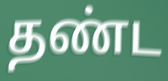
தண்ட